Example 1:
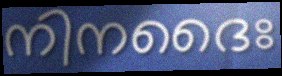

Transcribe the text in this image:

നിനദൈഃ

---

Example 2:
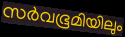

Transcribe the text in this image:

സർവഭൂമിയിലും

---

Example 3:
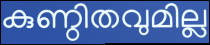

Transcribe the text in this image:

കുണ്ഠിതവുമില്ല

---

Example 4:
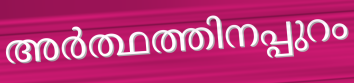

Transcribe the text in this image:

അർത്ഥത്തിനപ്പുറം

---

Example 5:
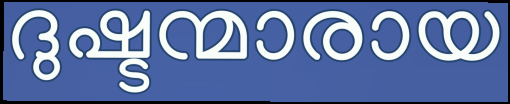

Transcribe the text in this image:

ദുഷ്ടന്മാരായ